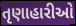
તૃણાહારીઓ